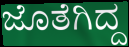
ಜೊತೆಗಿದ್ದ